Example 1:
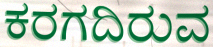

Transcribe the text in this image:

ಕರಗದಿರುವ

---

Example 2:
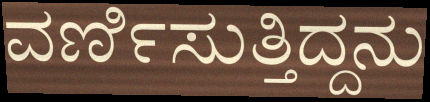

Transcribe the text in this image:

ವರ್ಣಿಸುತ್ತಿದ್ದನು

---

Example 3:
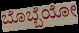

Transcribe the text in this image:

ಬೊಬ್ಬೆಯೋ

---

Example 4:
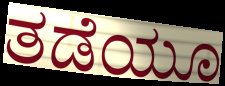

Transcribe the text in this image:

ತಡೆಯೂ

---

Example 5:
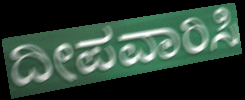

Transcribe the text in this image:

ದೀಪವಾರಿಸಿ